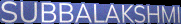
SUBBALAKSHMI